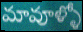
మావూళ్ళో